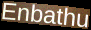
Enbathu